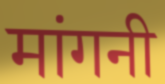
मांगनी